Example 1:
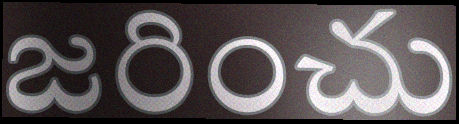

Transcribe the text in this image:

జరించు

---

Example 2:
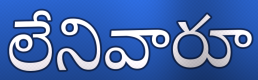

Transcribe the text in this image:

లేనివారూ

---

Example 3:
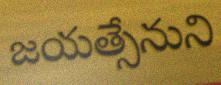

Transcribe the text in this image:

జయత్సేనుని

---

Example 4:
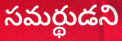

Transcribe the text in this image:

సమర్థుడని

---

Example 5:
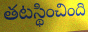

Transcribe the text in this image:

తటస్థించింది